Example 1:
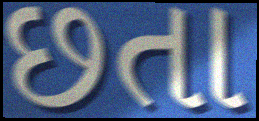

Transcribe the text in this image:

છતા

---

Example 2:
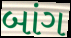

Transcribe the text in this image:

બાંગ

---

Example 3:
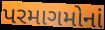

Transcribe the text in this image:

પરમાગમોનાં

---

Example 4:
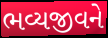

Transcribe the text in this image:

ભવ્યજીવને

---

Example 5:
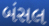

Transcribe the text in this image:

બંસલ